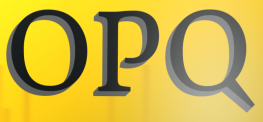
OPQ